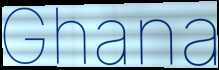
Ghana